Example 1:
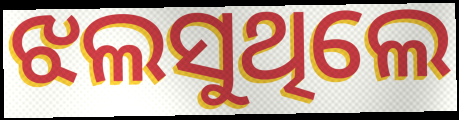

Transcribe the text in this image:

ଝଲସୁଥିଲେ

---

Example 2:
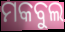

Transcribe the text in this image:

ମକବୁଲ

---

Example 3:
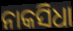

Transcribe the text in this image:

ନାକସିଧା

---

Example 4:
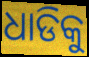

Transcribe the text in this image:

ଧାଡିକୁ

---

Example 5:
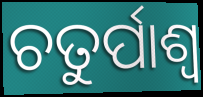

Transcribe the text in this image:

ଚତୁର୍ପାଶ୍ୱ